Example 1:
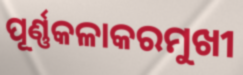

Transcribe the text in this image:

ପୂର୍ଣ୍ଣକଳାକରମୁଖୀ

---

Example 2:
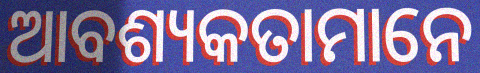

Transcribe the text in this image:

ଆବଶ୍ୟକତାମାନେ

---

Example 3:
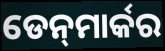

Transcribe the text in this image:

ଡେନ୍‍ମାର୍କର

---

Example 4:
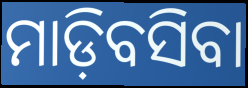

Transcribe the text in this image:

ମାଡ଼ିବସିବା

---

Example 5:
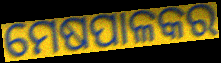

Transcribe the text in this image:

ମେଷପାଳକର